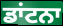
ਡਾਂਟਨਾ